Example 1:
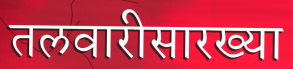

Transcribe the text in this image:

तलवारीसारख्या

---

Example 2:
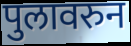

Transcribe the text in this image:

पुलावरुन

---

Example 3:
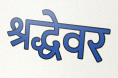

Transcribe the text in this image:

श्रद्धेवर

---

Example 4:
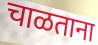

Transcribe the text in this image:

चाळताना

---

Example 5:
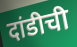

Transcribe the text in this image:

दांडीची